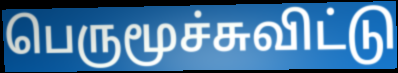
பெருமூச்சுவிட்டு